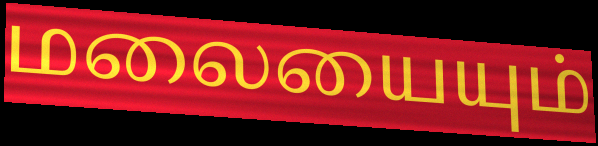
மலையையும்